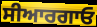
ਸੀਆਰਗਾਓ